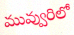
మువ్వురిలో